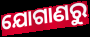
ଯୋଗାଣରୁ